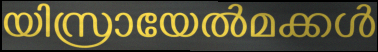
യിസ്രായേൽമക്കൾ